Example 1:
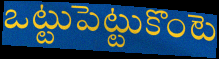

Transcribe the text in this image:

ఒట్టుపెట్టుకొంటె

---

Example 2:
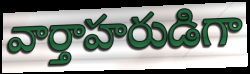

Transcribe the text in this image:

వార్తాహరుడిగా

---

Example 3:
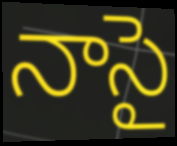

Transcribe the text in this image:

నాసై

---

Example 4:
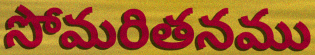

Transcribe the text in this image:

సోమరితనము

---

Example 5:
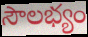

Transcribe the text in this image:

సౌలభ్యం